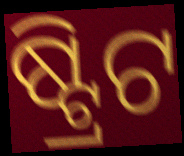
ଷ୍ଟ୍ରିଟ